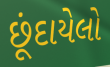
છૂંદાયેલો